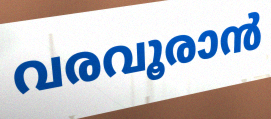
വരവൂരാൻ